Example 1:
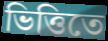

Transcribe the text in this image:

ভিত্তিতে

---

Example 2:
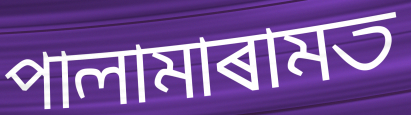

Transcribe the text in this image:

পালামাৰামত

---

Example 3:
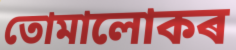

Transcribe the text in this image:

তোমালোকৰ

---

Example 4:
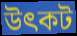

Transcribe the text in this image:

উৎকট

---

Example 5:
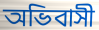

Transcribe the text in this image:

অভিবাসী